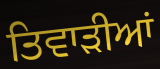
ਤਿਵਾੜੀਆਂ